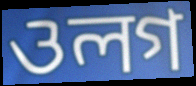
ওলগ